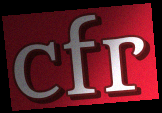
cfr